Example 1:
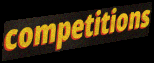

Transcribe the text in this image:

competitions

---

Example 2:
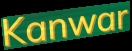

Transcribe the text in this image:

Kanwar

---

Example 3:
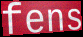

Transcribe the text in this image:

fens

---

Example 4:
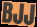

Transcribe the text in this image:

BJJ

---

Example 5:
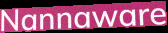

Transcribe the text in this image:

Nannaware